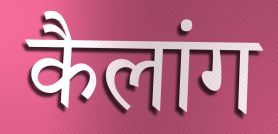
कैलांग